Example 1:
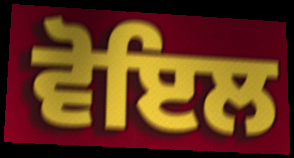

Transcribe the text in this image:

ਵੋਇਲ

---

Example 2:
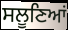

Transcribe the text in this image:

ਸਲੂਣਿਆਂ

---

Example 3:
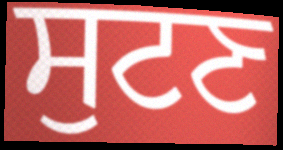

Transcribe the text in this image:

ਸੁਟਣ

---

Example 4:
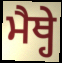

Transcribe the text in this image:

ਮੈਥ੍ਹੇ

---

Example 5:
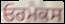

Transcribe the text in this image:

ਓਰਮੈਕਸ